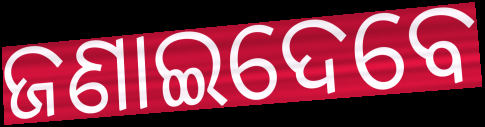
ଜଣାଇଦେବେ